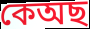
কেঅছ